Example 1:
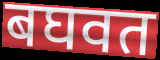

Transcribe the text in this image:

बघवत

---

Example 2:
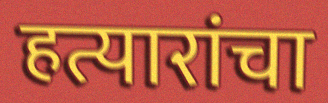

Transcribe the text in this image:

हत्यारांचा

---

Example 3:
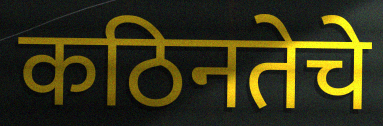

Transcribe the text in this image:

कठिनतेचे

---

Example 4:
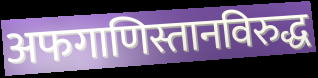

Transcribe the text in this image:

अफगाणिस्तानविरुद्ध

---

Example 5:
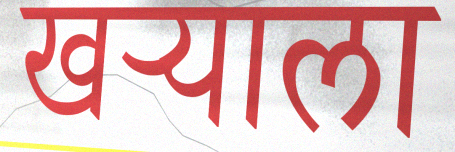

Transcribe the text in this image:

खर्‍याला